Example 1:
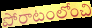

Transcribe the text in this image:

పోరాటంలోంచి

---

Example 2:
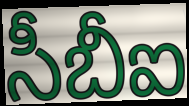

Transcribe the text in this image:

సీబీఐ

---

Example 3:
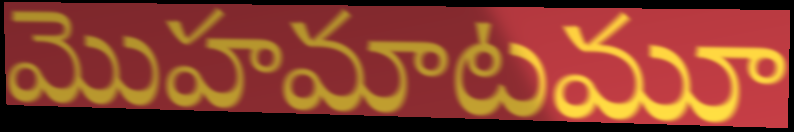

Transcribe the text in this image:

మొహమాటమూ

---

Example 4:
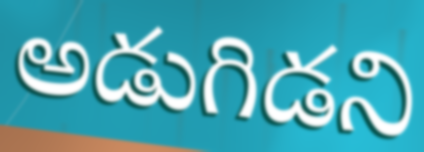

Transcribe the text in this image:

అడుగిడని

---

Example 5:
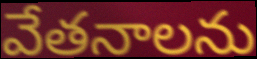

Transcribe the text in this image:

వేతనాలను